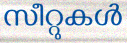
സീറ്റുകൾ